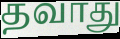
தவாது